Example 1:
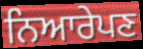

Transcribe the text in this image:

ਨਿਆਰੇਪਣ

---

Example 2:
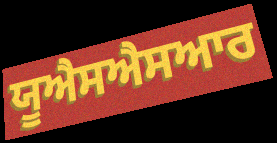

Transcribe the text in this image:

ਯੂਐਸਐਸਆਰ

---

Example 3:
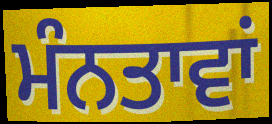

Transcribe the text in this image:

ਮੰਨਤਾਵਾਂ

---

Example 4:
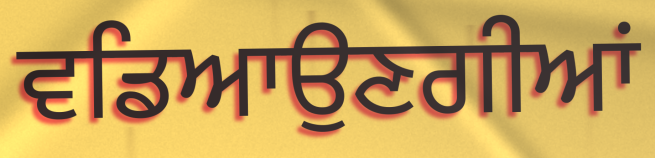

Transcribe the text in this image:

ਵਡਿਆਉਣਗੀਆਂ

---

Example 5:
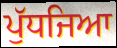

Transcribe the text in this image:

ਪੁੱਧਜਿਆ